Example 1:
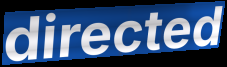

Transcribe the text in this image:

directed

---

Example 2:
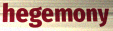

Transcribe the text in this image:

hegemony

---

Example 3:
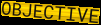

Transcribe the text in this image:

OBJECTIVE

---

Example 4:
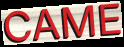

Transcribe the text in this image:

CAME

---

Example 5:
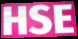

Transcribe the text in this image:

HSE